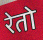
रेतो